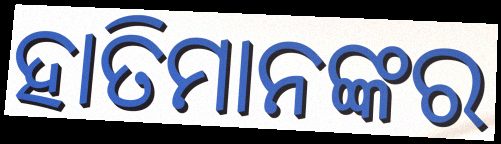
ହାତିମାନଙ୍କର